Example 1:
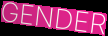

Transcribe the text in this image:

GENDER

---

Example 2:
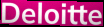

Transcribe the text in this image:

Deloitte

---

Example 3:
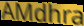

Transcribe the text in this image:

AMdhra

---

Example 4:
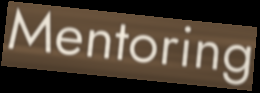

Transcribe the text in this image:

Mentoring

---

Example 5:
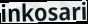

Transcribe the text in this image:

inkosari